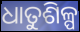
ଧାତୁଶିଳ୍ପ